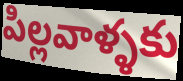
పిల్లవాళ్ళకు